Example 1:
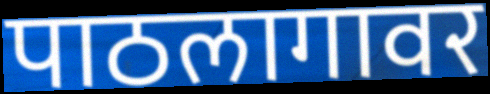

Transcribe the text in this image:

पाठलागावर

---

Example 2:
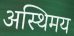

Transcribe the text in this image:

अस्थिमय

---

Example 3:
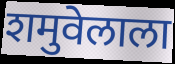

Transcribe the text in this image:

शमुवेलाला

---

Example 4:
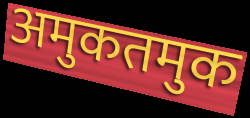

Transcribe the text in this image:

अमुकतमुक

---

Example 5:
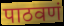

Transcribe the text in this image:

पाठवणं